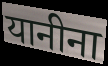
यानीना